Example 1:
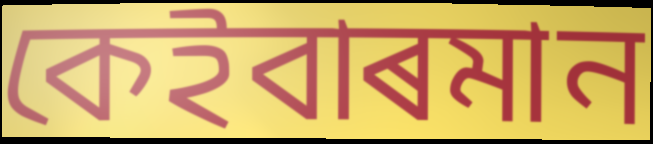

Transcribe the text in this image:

কেইবাৰমান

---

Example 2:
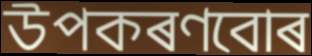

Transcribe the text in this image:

উপকৰণবোৰ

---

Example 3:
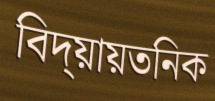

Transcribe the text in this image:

বিদ্য়ায়তনিক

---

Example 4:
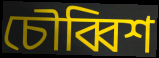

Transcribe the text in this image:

চৌব্বিশ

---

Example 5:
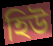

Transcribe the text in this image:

হিউ